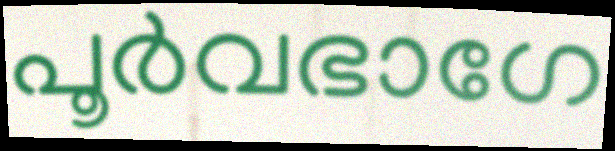
പൂർവഭാഗേ